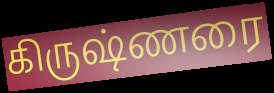
கிருஷ்ணரை